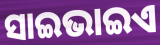
ସାଇଭାଇଏ